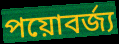
পয়োবর্জ্য